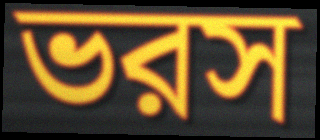
ভরস